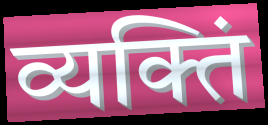
व्यक्तिं